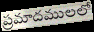
ప్రమాదములలో